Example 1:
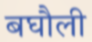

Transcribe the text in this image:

बघौली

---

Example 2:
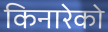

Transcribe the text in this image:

किनारेको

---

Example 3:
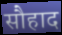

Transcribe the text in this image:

सौहाद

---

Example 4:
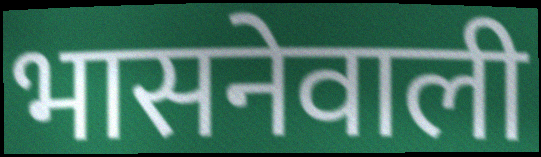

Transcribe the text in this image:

भासनेवाली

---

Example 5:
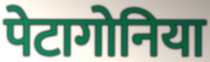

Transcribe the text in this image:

पेटागोनिया